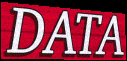
DATA